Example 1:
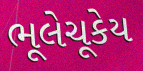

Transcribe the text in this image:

ભૂલેચૂકેય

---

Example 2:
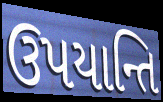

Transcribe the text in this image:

ઉપયાન્તિ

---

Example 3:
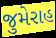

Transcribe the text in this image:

જુમેરાહ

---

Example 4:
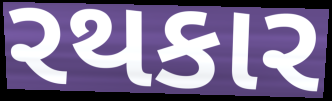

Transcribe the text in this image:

રથકાર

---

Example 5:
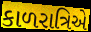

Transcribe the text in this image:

કાળરાત્રિએ